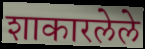
शाकारलेले